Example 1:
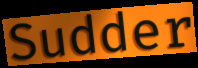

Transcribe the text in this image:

Sudder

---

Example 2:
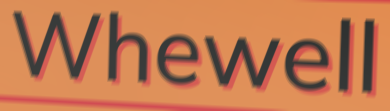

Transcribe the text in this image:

Whewell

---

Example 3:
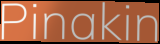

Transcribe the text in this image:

Pinakin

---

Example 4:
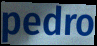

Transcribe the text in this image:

pedro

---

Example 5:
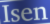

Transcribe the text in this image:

Isen